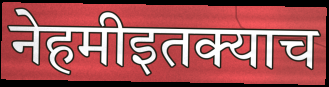
नेहमीइतक्याच